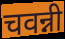
चवन्नी